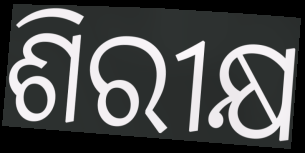
ଶିରୀକ୍ଷ